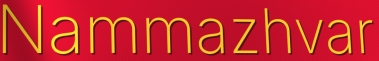
Nammazhvar